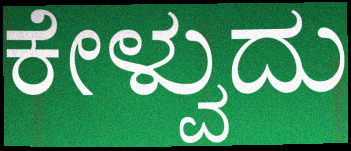
ಕೇಳ್ವುದು